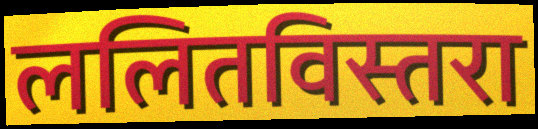
ललितविस्तरा